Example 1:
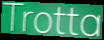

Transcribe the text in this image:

Trotta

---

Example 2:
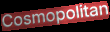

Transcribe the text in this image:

Cosmopolitan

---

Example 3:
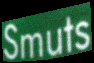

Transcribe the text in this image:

Smuts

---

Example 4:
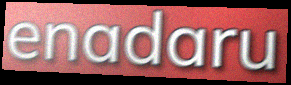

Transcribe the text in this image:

enadaru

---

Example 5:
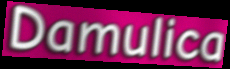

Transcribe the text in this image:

Damulica